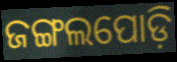
ଜଙ୍ଗଲପୋଡ଼ି